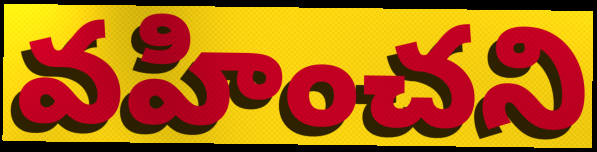
వహించని